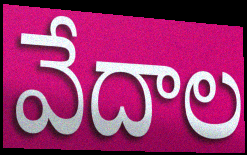
వేదాల